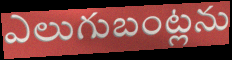
ఎలుగుబంట్లను